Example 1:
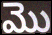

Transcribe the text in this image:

మొ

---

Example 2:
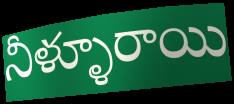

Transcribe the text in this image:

నీళ్ళూరాయి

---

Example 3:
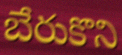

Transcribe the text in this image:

బేరుకొని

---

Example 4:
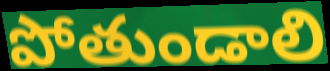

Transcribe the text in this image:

పోతుండాలి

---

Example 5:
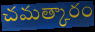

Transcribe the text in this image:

చమత్కారం